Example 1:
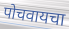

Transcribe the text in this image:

पोचवायचा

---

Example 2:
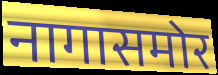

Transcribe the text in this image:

नागासमोर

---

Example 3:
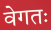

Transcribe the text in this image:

वेगतः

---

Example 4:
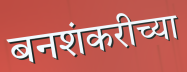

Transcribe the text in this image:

बनशंकरीच्या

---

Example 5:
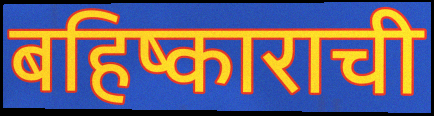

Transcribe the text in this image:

बहिष्काराची